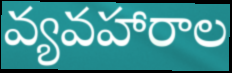
వ్యవహారాల